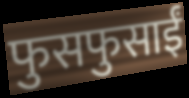
फुसफुसाईं